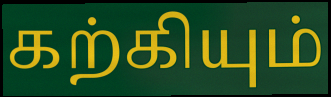
கற்கியும்